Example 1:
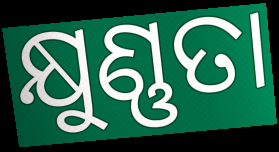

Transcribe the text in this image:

କ୍ଷୁଣ୍ଣତା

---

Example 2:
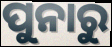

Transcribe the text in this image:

ପୁନାରୁ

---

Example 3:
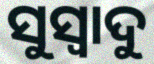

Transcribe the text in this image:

ସୁସ୍ଵାଦୁ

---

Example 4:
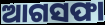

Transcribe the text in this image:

ଆଗସଫା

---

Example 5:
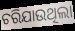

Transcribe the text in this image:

ଚରିଯାଉଥିଲା